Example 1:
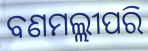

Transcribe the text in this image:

ବଣମଲ୍ଲୀପରି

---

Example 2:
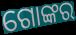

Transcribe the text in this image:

ଗୋଙ୍କର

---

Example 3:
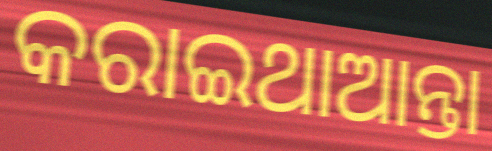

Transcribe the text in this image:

କରାଇଥାଆନ୍ତା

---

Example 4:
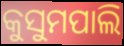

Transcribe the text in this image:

କୁସୁମପାଲି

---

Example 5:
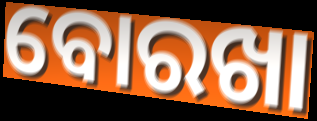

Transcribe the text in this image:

ବୋରଖା